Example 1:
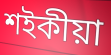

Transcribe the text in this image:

শইকীয়া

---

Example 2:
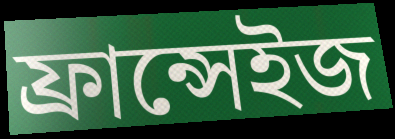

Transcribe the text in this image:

ফ্ৰান্সেইজ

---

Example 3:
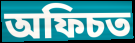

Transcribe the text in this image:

অফিচত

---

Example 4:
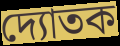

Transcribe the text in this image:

দ্যোতক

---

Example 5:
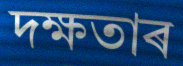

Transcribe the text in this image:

দক্ষতাৰ